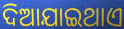
ଦିଆଯାଇଥାଏ